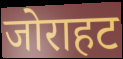
जोराहट